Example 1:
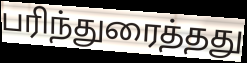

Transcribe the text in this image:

பரிந்துரைத்தது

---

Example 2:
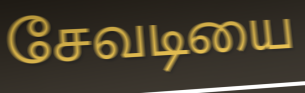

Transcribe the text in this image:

சேவடியை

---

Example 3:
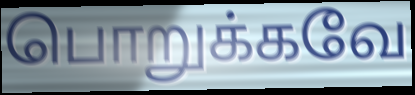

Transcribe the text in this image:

பொறுக்கவே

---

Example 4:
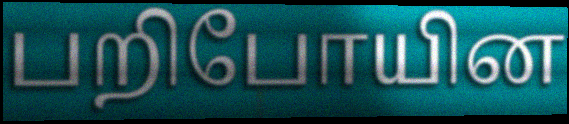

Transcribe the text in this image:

பறிபோயின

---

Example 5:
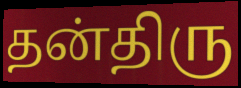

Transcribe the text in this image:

தன்திரு